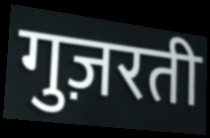
गुज़रती